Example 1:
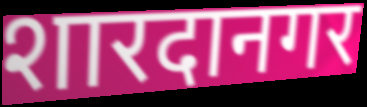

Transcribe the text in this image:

शारदानगर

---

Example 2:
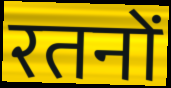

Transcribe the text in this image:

रतनों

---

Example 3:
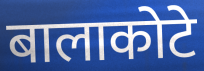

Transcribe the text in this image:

बालाकोटे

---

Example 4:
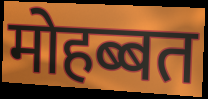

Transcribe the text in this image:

मोहब्‍बत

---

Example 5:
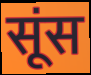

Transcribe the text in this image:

सूंस